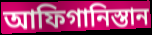
আফিগানিস্তান